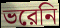
ভরেনি